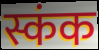
स्कंक